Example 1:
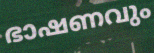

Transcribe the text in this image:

ഭാഷണവും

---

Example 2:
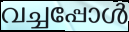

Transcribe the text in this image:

വച്ചപ്പോൾ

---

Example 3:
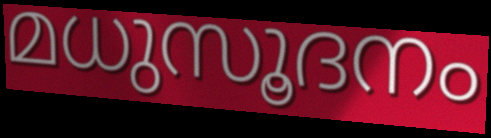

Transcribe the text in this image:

മധുസൂദനം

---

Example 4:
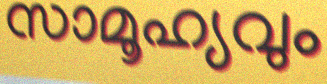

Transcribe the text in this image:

സാമൂഹ്യവും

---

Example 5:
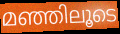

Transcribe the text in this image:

മഞ്ഞിലൂടെ